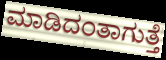
ಮಾಡಿದಂತಾಗುತ್ತೆ